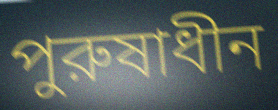
পুরুষাধীন